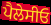
ਪੈਲੇਸੀਓ